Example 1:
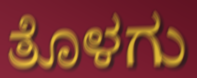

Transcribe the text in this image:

ತೊಳಗು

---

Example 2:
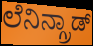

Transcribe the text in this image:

ಲೆನಿನ್ಗ್ರಾಡ್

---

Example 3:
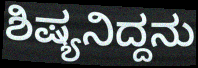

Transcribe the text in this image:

ಶಿಷ್ಯನಿದ್ದನು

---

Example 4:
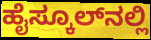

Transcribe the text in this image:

ಹೈಸ್ಕೂಲ್‍ನಲ್ಲಿ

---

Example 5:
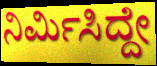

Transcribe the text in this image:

ನಿರ್ಮಿಸಿದ್ದೇ